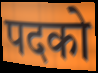
पदको